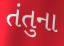
તંતુના